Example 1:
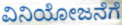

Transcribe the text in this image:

ವಿನಿಯೋಜನೆಗೆ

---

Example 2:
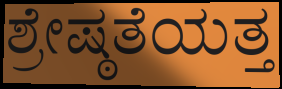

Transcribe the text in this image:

ಶ್ರೇಷ್ಠತೆಯತ್ತ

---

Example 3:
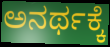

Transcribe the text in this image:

ಅನರ್ಥಕ್ಕೆ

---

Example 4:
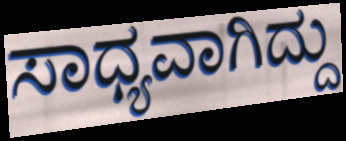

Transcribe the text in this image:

ಸಾಧ್ಯವಾಗಿದ್ದು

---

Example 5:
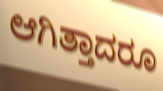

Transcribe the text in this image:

ಆಗಿತ್ತಾದರೂ